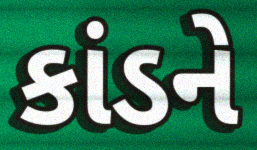
કાંડને